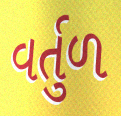
વર્તુળ